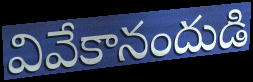
వివేకానందుడి